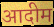
आदीम